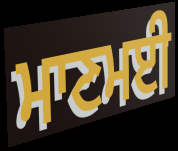
ਮਾਣਮਈ